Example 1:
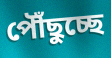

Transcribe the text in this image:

পৌঁছুচ্ছে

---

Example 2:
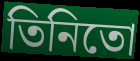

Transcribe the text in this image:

তিনিতো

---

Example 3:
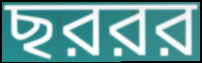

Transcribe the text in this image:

ছররর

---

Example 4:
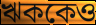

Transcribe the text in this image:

ঋককেও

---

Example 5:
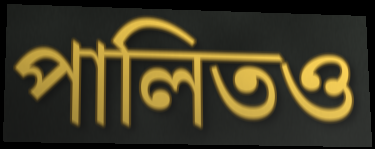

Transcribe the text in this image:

পালিতও